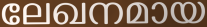
ലേഖനമായ